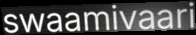
swaamivaari